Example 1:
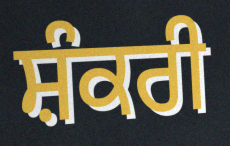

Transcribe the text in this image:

ਸ਼ੰਕਰੀ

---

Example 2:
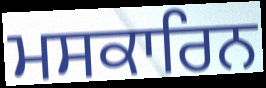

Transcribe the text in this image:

ਮਸਕਾਰਿਨ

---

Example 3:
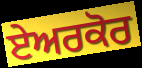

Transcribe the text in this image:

ਏਅਰਕੋਰ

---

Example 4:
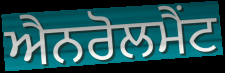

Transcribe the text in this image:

ਐਨਰੋਲਮੈਂਟ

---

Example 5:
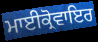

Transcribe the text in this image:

ਮਾਈਕ੍ਰੋਵਾਇਰ